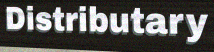
Distributary